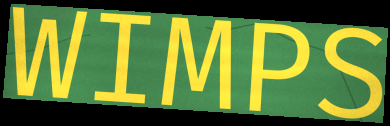
WIMPS